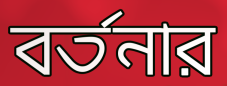
বর্তনার